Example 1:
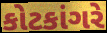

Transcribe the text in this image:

કોટકાંગરે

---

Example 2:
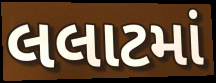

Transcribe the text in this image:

લલાટમાં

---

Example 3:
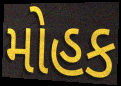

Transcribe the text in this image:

મોહક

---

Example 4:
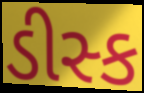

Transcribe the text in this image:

ડીસ્ક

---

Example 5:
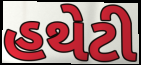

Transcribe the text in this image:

હથેટી